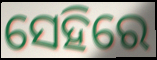
ସେହିରେ